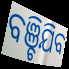
ବଞ୍ଚିଯିବ